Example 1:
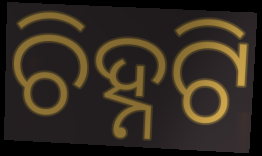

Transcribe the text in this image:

ଚିହ୍ନଟି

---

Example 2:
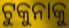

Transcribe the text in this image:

ଟୁକୁନାକୁ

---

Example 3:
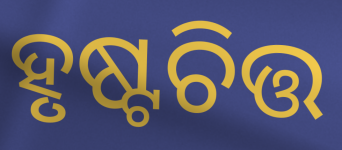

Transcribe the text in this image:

ହୃଷ୍ଟଚିତ୍ତ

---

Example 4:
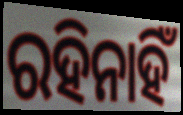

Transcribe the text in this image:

ରହିନାହିଁ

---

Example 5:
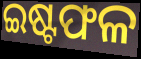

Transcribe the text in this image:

ଇଷ୍ଟଫଳ